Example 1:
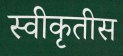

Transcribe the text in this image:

स्वीकृतीस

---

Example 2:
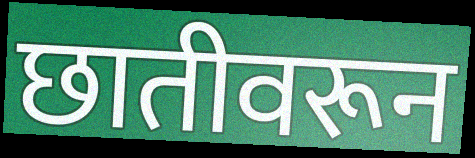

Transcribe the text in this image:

छातीवरून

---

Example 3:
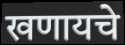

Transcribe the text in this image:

खणायचे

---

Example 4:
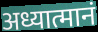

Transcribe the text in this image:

अध्यात्मानं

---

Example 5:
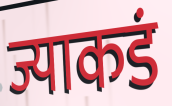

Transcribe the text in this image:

ज्याकडं